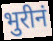
भुरीनं